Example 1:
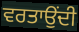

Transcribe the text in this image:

ਵਰਤਾਉਂਦੀ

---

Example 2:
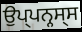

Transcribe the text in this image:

ਉਪ੍ਪਨ੍ਨਸ੍ਸ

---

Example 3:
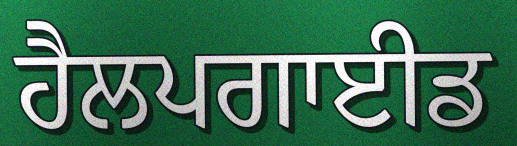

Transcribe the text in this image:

ਹੈਲਪਗਾਈਡ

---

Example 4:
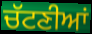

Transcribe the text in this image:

ਚੱਟਣੀਆਂ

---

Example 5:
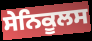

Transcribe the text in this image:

ਸੇਨਿਕੂਲਸ